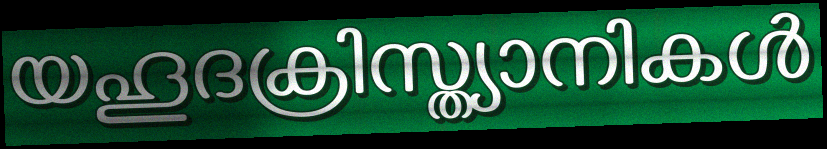
യഹൂദക്രിസ്ത്യാനികൾ